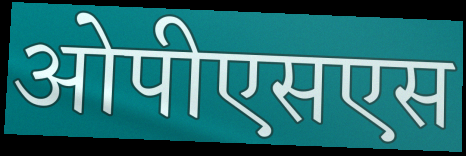
ओपीएसएस